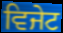
ਵਿਜੇਟ